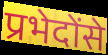
प्रभेदोंसे